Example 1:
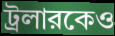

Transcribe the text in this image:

ট্রলারকেও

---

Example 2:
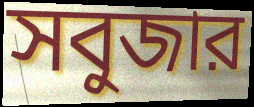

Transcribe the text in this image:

সবুজার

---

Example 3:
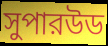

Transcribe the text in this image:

সুপারউড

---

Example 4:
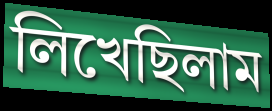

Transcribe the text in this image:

লিখেছিলাম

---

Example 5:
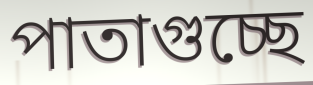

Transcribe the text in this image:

পাতাগুচ্ছে